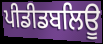
ਪੀਡੀਡਬਲਿਊ